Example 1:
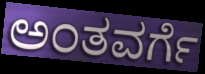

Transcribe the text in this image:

ಅಂತವರ್ಗೆ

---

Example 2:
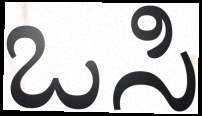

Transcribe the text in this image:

ಒಸಿ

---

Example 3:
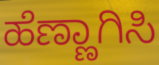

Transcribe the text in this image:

ಹೆಣ್ಣಾಗಿಸಿ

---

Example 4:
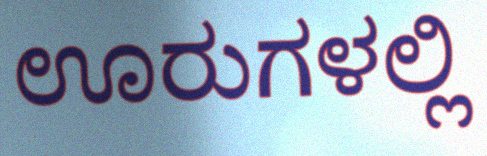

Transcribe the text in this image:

ಊರುಗಳಲ್ಲಿ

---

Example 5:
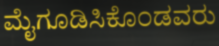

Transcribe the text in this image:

ಮೈಗೂಡಿಸಿಕೊಂಡವರು